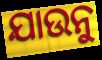
ଯାଉନୁ